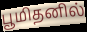
பூமிதனில்